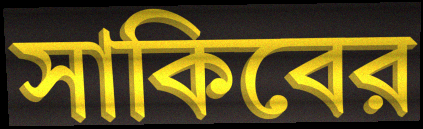
সাকিবের